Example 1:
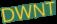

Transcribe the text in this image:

DWNT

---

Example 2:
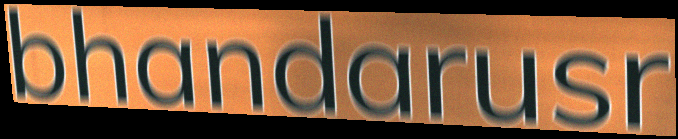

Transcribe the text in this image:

bhandarusr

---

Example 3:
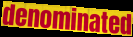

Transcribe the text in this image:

denominated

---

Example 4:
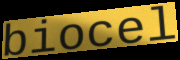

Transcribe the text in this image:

biocel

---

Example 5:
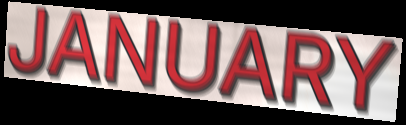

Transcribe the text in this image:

JANUARY